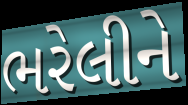
ભરેલીને